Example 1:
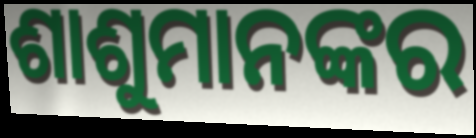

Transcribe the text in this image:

ଶାଶୁମାନଙ୍କର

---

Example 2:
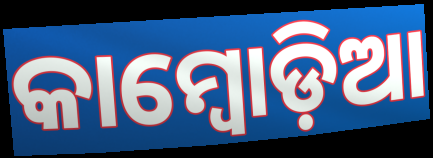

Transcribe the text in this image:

କାମ୍ବୋଡ଼ିଆ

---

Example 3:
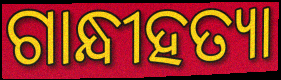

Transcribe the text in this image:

ଗାନ୍ଧୀହତ୍ୟା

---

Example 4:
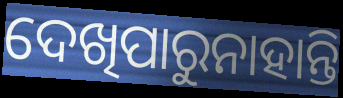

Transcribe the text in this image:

ଦେଖିପାରୁନାହାନ୍ତି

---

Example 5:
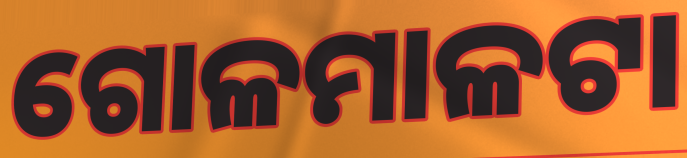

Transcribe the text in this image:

ଗୋଳମାଳଟା